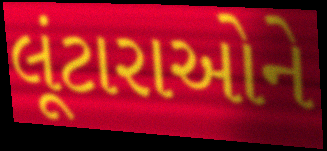
લૂંટારાઓને